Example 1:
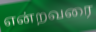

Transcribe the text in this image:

என்றவரை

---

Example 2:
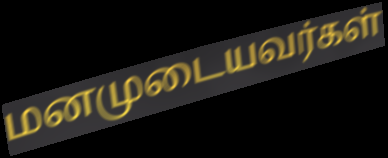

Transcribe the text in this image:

மனமுடையவர்கள்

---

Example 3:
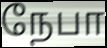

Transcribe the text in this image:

நேபா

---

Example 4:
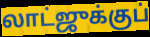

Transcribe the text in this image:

லாட்ஜுக்குப்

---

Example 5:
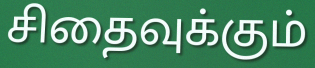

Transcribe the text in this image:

சிதைவுக்கும்